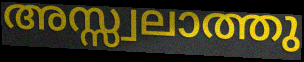
അസ്സ്വലാത്തു